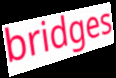
bridges